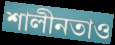
শালীনতাও